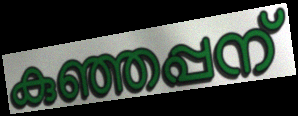
കുഞ്ഞപ്പന്